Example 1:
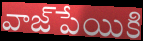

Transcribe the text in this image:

వాజ్‌పేయికి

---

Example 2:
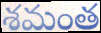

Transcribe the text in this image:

శమంత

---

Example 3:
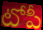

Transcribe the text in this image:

టోపీ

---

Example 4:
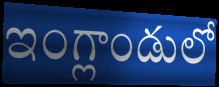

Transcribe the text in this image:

ఇంగ్లాండులో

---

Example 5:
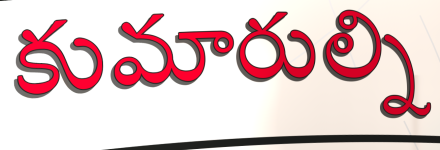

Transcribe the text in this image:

కుమారుల్ని